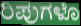
ರಿಪುಗಳೊ